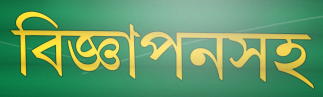
বিজ্ঞাপনসহ